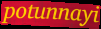
potunnayi